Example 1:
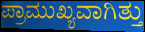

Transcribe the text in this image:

ಪ್ರಾಮುಖ್ಯವಾಗಿತ್ತು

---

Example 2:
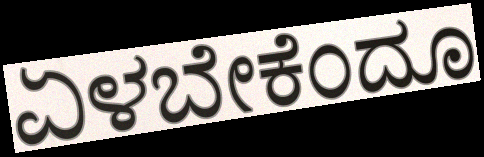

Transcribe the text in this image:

ಏಳಬೇಕೆಂದೂ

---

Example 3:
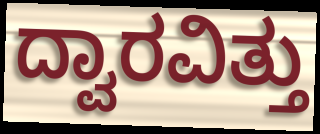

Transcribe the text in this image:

ದ್ವಾರವಿತ್ತು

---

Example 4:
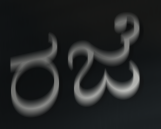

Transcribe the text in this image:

ರಜೆ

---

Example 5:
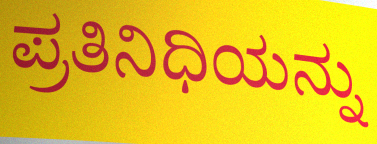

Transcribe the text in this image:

ಪ್ರತಿನಿಧಿಯನ್ನು